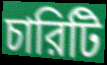
চারিটি